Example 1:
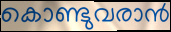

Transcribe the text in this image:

കൊണ്ടുവരാൻ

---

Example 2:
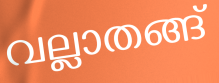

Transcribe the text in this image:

വല്ലാതങ്ങ്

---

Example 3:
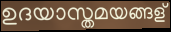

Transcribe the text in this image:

ഉദയാസ്തമയങ്ങള്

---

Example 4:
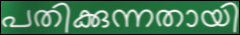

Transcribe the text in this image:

പതിക്കുന്നതായി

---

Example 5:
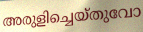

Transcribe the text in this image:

അരുളിച്ചെയ്തുവോ